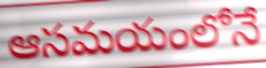
ఆసమయంలోనే